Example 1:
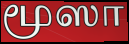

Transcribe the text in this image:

மூஸா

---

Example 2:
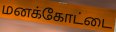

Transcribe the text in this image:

மனக்கோட்டை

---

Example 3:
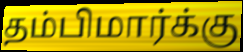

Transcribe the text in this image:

தம்பிமார்க்கு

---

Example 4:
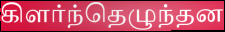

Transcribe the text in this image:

கிளர்ந்தெழுந்தன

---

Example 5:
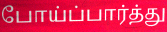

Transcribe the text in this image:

போய்ப்பார்த்து